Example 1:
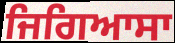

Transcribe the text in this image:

ਜਿਗਿਆਸਾ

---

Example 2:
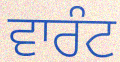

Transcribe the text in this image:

ਵਾਰੰਟ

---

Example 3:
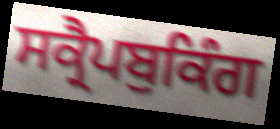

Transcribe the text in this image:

ਸਕ੍ਰੈਪਬੁਕਿੰਗ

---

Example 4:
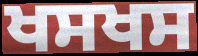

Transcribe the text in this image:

ਖਸਖਸ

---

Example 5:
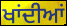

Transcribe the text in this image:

ਖਾਂਦੀਆਂ